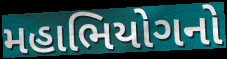
મહાભિયોગનો